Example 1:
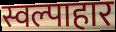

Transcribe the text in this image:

स्‍वल्‍पाहार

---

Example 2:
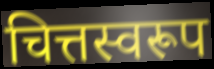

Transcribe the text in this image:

चित्तस्वरूप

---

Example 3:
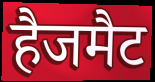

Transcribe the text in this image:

हैजमैट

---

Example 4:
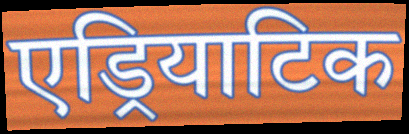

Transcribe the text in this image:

एड्रियाटिक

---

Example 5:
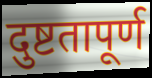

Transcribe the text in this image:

दुष्टतापूर्ण